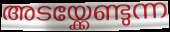
അടയ്ക്കേണ്ടുന്ന